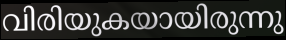
വിരിയുകയായിരുന്നു